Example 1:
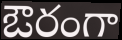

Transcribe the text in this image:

ఔరంగా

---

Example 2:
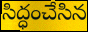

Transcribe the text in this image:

సిద్ధంచేసిన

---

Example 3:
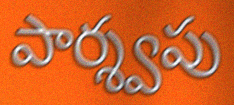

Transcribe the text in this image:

పార్శ్వపు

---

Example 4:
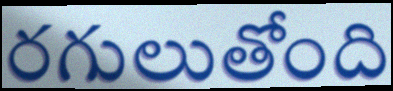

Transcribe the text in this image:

రగులుతోంది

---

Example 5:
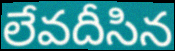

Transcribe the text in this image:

లేవదీసిన